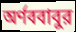
অর্ণববাবুর